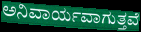
ಅನಿವಾರ್ಯವಾಗುತ್ತವೆ